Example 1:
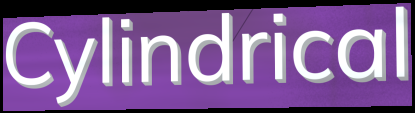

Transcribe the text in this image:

Cylindrical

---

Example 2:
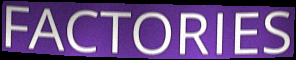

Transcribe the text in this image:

FACTORIES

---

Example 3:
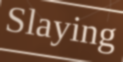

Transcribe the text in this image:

Slaying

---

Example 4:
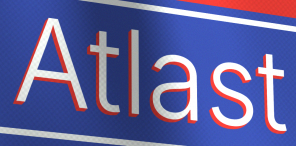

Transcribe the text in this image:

Atlast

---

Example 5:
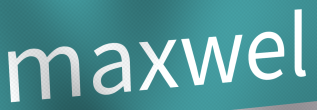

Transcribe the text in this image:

maxwel